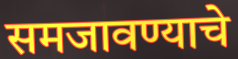
समजावण्याचे